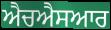
ਐਚਐਸਆਰ